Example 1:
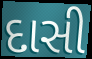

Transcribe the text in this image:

દાસી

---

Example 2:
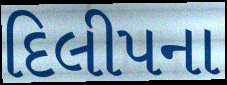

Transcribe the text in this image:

દિલીપના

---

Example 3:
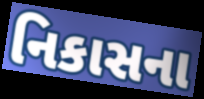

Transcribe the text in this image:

નિકાસના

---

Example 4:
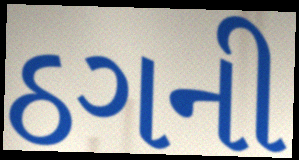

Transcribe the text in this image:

ઠગની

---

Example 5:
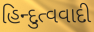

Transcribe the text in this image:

હિન્દુત્વવાદી